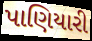
પાણિયારી